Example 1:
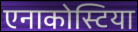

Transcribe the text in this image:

एनाकोस्टिया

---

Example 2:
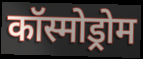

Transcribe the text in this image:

कॉस्मोड्रोम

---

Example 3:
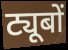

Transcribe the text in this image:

ट्यूबों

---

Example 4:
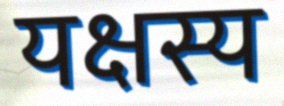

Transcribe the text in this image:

यक्षस्य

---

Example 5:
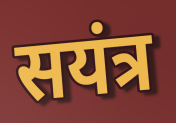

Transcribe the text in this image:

सयंत्र